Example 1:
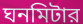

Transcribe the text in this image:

ঘনমিটার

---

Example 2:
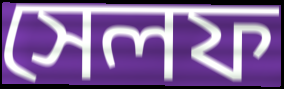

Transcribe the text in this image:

সেলফ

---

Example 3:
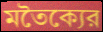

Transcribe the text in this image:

মতৈক্যের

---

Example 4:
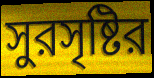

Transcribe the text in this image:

সুরসৃষ্টির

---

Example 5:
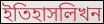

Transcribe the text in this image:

ইতিহাসলিখন